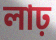
লাঢ়